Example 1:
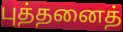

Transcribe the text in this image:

புத்தனைத்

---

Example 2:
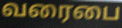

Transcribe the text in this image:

வரைபை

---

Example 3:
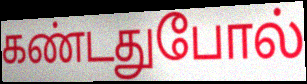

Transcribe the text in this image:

கண்டதுபோல்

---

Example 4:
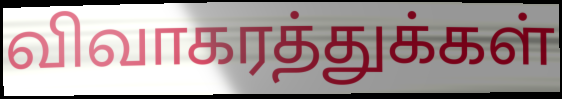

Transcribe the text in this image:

விவாகரத்துக்கள்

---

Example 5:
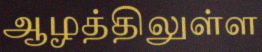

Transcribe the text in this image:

ஆழத்திலுள்ள